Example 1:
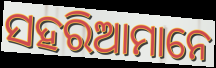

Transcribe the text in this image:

ସହରିଆମାନେ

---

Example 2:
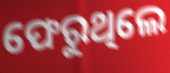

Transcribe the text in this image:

ଫେରୁଥିଲେ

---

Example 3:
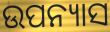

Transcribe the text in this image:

ଉପନ୍ୟାସ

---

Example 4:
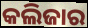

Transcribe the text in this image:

କଲିଜାର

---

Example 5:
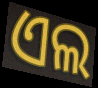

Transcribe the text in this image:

ଏଲ